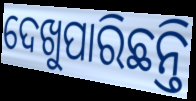
ଦେଖୁପାରିଛନ୍ତି